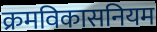
क्रमविकासनियम